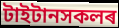
টাইটানসকলৰ